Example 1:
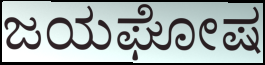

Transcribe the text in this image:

ಜಯಘೋಷ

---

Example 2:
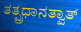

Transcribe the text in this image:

ತತ್ಪ್ರಧಾನತ್ವಾತ್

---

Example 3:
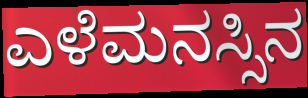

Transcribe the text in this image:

ಎಳೆಮನಸ್ಸಿನ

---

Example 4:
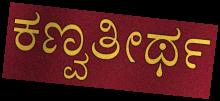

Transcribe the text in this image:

ಕಣ್ವತೀರ್ಥ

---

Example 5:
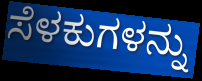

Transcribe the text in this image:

ಸೆಳಕುಗಳನ್ನು